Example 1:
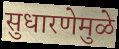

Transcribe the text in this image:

सुधारणेमुळे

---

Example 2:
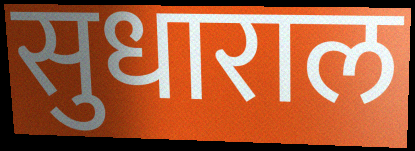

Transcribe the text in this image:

सुधाराल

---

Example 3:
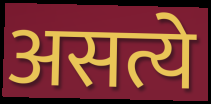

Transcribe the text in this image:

असत्ये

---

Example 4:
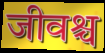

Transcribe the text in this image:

जीवश्च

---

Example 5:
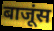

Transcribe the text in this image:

बाजूंस